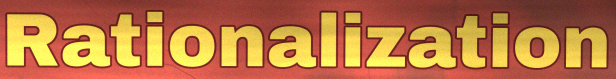
Rationalization